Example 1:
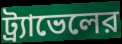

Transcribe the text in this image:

ট্র্যাভেলের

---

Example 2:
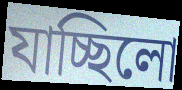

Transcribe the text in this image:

যাচ্ছিলো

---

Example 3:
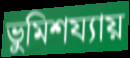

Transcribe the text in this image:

ভুমিশয্যায়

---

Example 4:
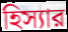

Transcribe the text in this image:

হিস্যার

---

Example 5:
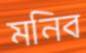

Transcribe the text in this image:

মনিব